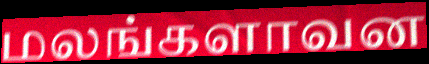
மலங்களாவன